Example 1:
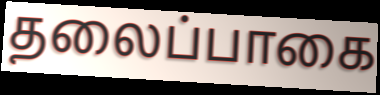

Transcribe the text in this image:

தலைப்பாகை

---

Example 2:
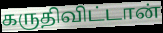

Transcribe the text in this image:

கருதிவிட்டான்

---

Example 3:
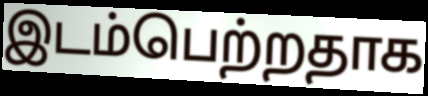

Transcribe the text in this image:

இடம்பெற்றதாக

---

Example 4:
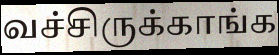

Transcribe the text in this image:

வச்சிருக்காங்க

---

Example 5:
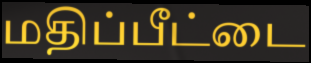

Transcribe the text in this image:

மதிப்பீட்டை